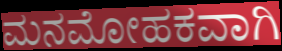
ಮನಮೋಹಕವಾಗಿ